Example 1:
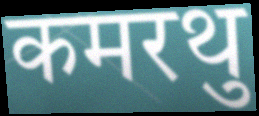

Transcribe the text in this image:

कमरथु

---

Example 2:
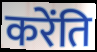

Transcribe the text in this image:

करेंति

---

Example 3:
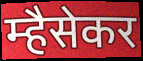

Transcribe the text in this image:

म्हैसेकर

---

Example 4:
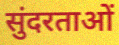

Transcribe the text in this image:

सुंदरताओं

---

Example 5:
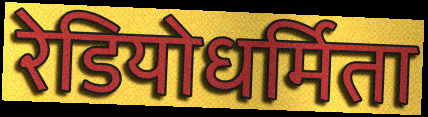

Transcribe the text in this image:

रेडियोधर्मिता